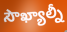
సౌఖ్యాల్నీ